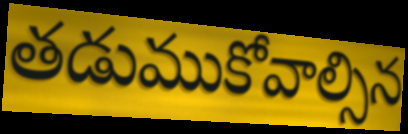
తడుముకోవాల్సిన